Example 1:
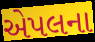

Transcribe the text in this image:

એપલના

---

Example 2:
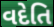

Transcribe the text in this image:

વદેતિ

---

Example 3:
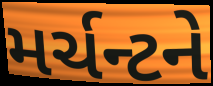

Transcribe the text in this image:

મર્ચન્ટને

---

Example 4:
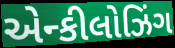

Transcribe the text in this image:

એન્કીલોઝિંગ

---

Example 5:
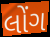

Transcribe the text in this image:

લોંગ